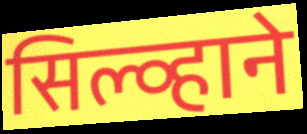
सिल्व्हाने